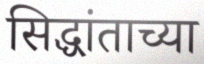
सिद्धांताच्या